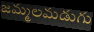
జమ్మలమడుగు